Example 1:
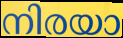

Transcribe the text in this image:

നിരയാ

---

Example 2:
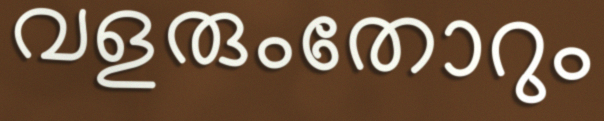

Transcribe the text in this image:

വളരുംതോറും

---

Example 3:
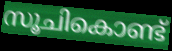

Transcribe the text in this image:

സൂചികൊണ്ട്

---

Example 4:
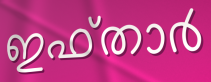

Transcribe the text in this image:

ഇഫ്താർ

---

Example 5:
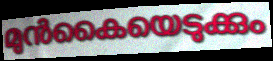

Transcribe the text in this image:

മുൻകൈയെടുക്കും